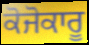
ਕੋਜੋਕਾਰੂ